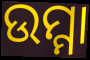
ଉମ୍ମା